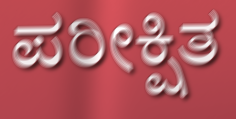
ಪರೀಕ್ಷಿತ